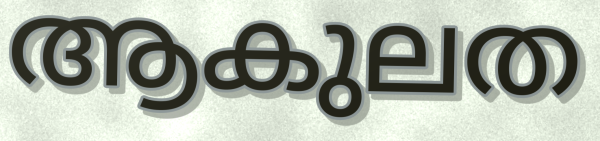
ആകുലത